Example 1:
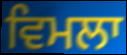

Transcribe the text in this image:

ਵਿਮਲਾ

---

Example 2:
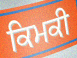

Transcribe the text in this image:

ਕਿਮਕੀ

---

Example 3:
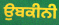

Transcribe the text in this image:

ਉਬਕੀਨੀ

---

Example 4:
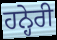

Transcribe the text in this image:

ਹਨ੍ਹੇਰੀ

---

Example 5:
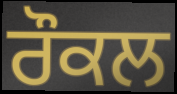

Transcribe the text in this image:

ਰੌਕਲ